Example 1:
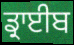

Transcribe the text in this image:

ਡ੍ਰਾਈਬ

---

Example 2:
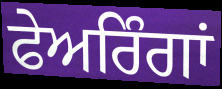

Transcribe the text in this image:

ਫੇਅਰਿੰਗਾਂ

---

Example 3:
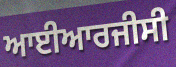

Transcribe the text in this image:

ਆਈਆਰਜੀਸੀ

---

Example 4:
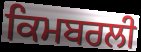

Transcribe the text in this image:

ਕਿਮਬਰਲੀ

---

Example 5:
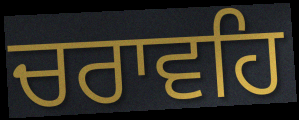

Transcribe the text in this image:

ਚਰਾਵਹਿ